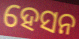
ହେସନ